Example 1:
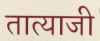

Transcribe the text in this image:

तात्याजी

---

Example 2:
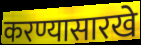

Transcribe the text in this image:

करण्यासारखे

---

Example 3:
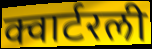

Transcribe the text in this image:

क्वार्टरली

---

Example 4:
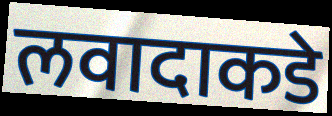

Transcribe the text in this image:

लवादाकडे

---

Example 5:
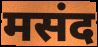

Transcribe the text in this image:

मसंद